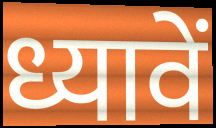
ध्यावें